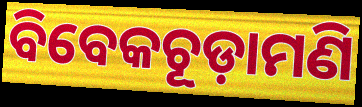
ବିବେକଚୂଡ଼ାମଣି